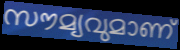
സൗമ്യവുമാണ്